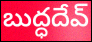
బుద్ధదేవ్